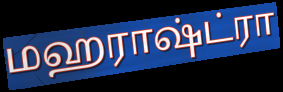
மஹராஷ்ட்ரா